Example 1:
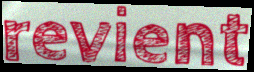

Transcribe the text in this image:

revient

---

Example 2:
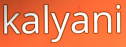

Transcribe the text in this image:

kalyani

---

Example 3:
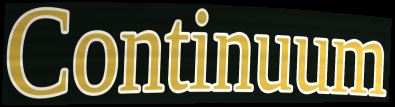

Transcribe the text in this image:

Continuum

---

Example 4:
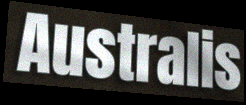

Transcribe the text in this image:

Australis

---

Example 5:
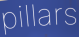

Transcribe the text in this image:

pillars